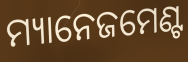
ମ୍ୟାନେଜମେଣ୍ଟ